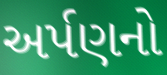
અર્પણનો